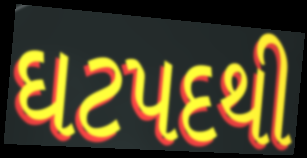
ઘટપદથી